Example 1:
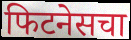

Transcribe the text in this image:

फिटनेसचा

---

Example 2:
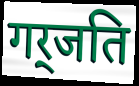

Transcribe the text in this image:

गर्जति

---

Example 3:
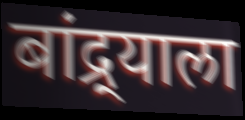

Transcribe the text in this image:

बांद्र्याला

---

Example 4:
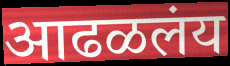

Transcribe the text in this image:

आढळलंय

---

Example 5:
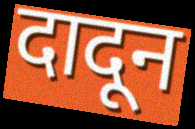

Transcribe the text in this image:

दादून